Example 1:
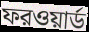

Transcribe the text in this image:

ফরওয়ার্ড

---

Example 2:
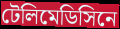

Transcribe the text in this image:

টেলিমেডিসিনে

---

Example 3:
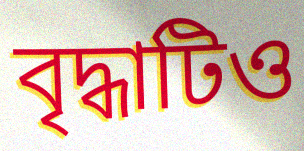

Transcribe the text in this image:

বৃদ্ধাটিও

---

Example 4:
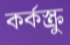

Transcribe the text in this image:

কর্কস্ক্রু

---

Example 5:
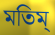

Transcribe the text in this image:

মতিম্